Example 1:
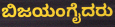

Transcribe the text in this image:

ಬಿಜಯಂಗೈದರು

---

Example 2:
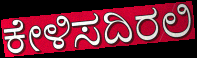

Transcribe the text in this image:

ಕೇಳಿಸದಿರಲಿ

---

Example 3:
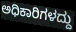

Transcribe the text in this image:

ಅಧಿಕಾರಿಗಳದ್ದು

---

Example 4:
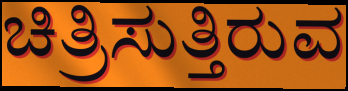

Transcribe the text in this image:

ಚಿತ್ರಿಸುತ್ತಿರುವ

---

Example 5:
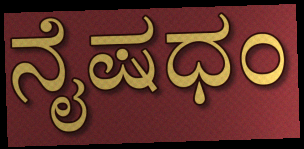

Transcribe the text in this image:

ನೈಷಧಂ